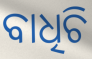
ବାଧିଚି